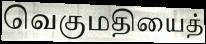
வெகுமதியைத்